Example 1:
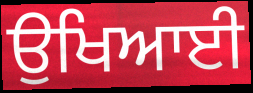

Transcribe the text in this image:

ਉਖਿਆਈ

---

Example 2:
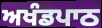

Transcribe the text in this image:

ਅਖੰਡਪਾਠ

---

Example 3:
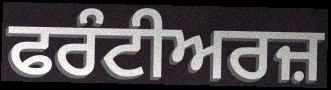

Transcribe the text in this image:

ਫਰੰਟੀਅਰਜ਼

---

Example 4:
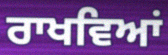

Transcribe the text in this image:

ਰਾਖਵਿਆਂ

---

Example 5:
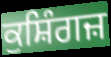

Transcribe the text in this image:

ਕੁਸ਼ਿੰਗਜ਼